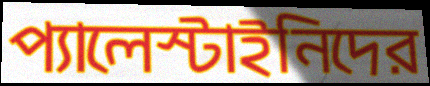
প্যালেস্টাইনিদের